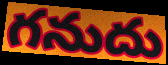
గనుదు